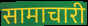
सामाचारी